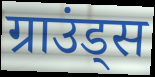
ग्राउंड्स